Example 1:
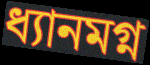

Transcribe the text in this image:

ধ্যানমগ্ন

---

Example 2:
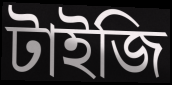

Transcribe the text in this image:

টাইজি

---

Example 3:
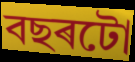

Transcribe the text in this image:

বছৰটো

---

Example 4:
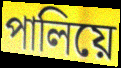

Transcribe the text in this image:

পালিয়ে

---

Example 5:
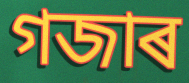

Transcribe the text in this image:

গজাৰ